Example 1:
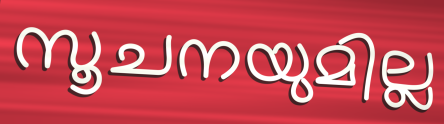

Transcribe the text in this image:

സൂചനയുമില്ല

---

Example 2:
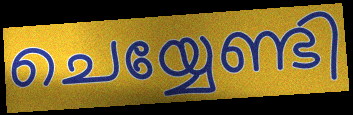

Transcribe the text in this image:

ചെയ്യേണ്ടി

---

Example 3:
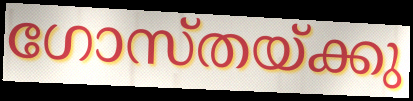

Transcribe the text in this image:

ഗോസ്തയ്ക്കു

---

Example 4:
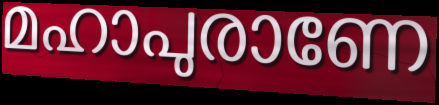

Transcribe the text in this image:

മഹാപുരാണേ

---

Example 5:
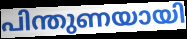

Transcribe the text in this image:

പിന്തുണയായി